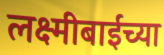
लक्ष्मीबाईच्या